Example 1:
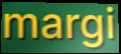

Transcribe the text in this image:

margi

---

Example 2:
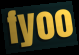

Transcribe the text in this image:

fyoo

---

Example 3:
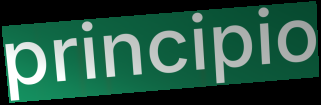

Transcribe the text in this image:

principio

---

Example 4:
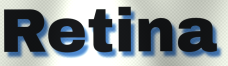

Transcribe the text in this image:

Retina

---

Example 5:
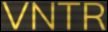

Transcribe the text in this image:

VNTR